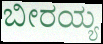
ಬೀರಯ್ಯ